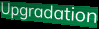
Upgradation